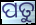
ପତୁ